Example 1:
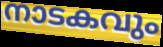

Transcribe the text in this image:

നാടകവും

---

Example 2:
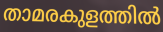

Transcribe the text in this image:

താമരകുളത്തിൽ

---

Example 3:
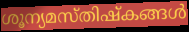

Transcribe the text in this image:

ശൂന്യമസ്തിഷ്കങ്ങൾ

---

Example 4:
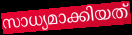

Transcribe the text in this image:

സാധ്യമാക്കിയത്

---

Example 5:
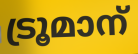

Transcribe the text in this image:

ട്രൂമാന്